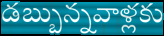
డబ్బున్నవాళ్లకు